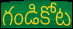
గండికోట